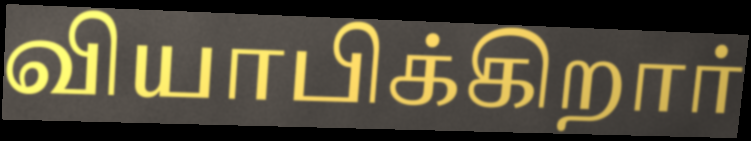
வியாபிக்கிறார்